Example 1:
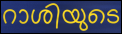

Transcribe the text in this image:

റാശിയുടെ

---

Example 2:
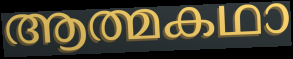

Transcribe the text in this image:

ആത്മകഥാ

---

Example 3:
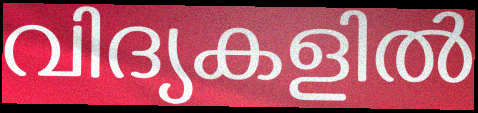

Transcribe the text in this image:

വിദ്യകളിൽ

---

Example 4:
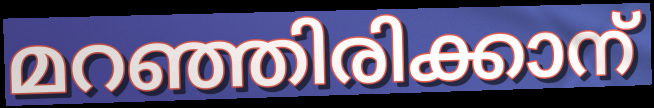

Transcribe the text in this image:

മറഞ്ഞിരിക്കാന്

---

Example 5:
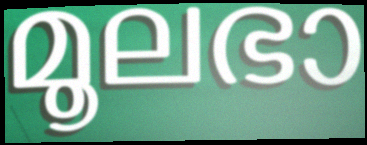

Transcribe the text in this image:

മൂലഭാ